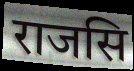
राजसि